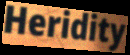
Heridity